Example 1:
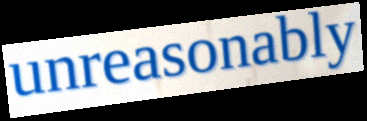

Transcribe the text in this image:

unreasonably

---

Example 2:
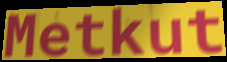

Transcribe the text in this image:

Metkut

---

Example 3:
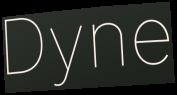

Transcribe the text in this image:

Dyne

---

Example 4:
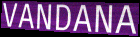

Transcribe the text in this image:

VANDANA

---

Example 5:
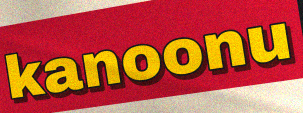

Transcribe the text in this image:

kanoonu